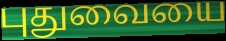
புதுவையை